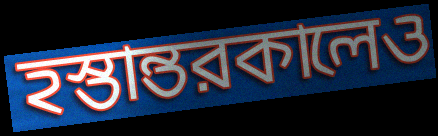
হস্তান্তরকালেও